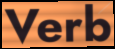
Verb